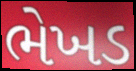
ભેખડ